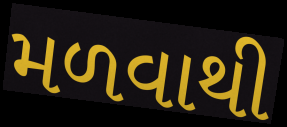
મળવાથી